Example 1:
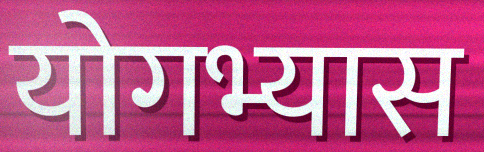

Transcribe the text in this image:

योगभ्यास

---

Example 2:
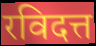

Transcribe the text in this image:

रविदत्त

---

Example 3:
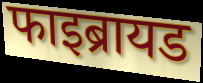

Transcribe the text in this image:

फाइब्रायड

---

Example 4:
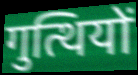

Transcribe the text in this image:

गुत्थियों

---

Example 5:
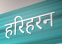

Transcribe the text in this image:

हरिहरन